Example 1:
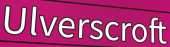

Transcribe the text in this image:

Ulverscroft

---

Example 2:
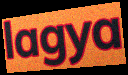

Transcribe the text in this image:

lagya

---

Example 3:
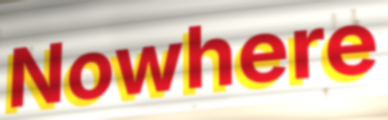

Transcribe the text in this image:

Nowhere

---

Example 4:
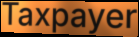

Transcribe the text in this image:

Taxpayer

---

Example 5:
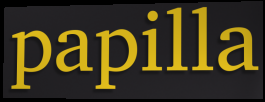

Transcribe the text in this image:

papilla